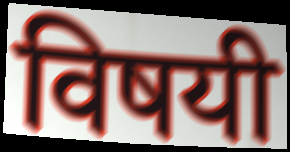
विषयी